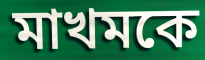
মাখমকে